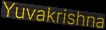
Yuvakrishna